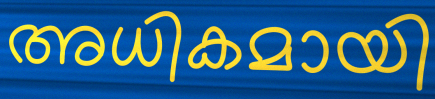
അധികമായി